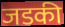
जडकी